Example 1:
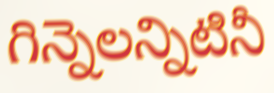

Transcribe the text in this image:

గిన్నెలన్నిటినీ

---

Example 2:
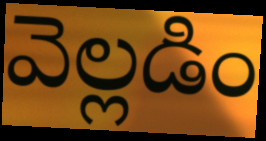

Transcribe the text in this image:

వెల్లడిం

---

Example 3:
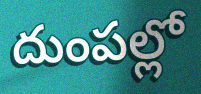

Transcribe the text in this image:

దుంపల్లో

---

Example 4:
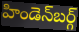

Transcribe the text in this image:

హిండెన్‌బర్గ్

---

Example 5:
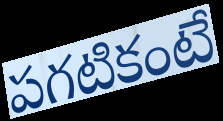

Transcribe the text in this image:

పగటికంటే